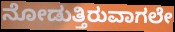
ನೋಡುತ್ತಿರುವಾಗಲೇ